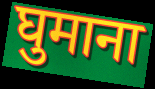
घुमाना